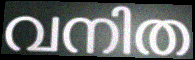
വനിത